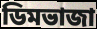
ডিমভাজা